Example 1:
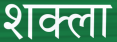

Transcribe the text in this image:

शक्ला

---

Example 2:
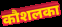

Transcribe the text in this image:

कौशलका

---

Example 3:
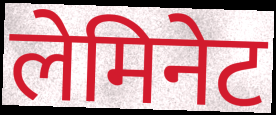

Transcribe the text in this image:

लेमिनेट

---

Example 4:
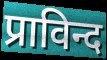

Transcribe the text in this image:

प्राविन्द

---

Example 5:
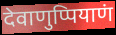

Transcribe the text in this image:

देवाणुप्पियाणं